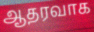
ஆதரவாக